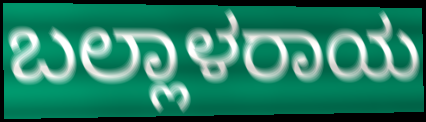
ಬಲ್ಲಾಳರಾಯ